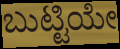
ಬುಟ್ಟಿಯೇ